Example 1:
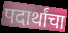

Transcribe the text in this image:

पदार्थांचा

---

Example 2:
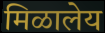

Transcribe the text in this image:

मिळालेय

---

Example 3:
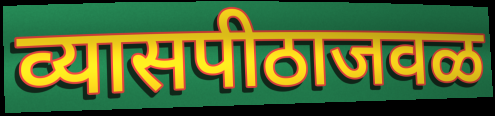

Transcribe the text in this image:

व्यासपीठाजवळ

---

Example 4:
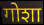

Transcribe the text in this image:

गोशा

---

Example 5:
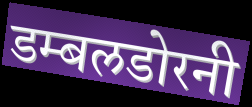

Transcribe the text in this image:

डम्बलडोरनी